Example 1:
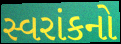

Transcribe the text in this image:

સ્વરાંકનો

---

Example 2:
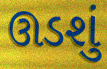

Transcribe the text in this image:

ઊડશું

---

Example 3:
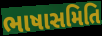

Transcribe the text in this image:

ભાષાસમિતિ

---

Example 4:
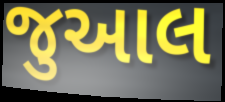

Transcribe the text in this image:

જુઆલ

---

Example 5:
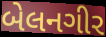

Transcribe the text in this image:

બેલનગીર